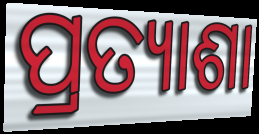
ପ୍ରତ୍ୟାଶା